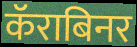
कॅराबिनर